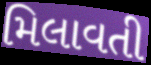
મિલાવતી